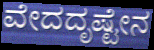
ವೇದದೃಷ್ಟೇನ